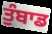
ਤੁੰਬਾਡ